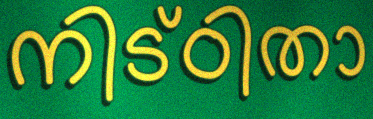
നിട്ഠിതാ